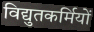
विद्युतकर्मियों